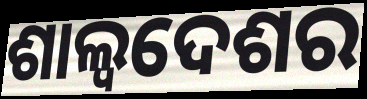
ଶାଲ୍ୱଦେଶର